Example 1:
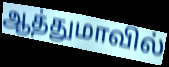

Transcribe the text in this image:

ஆத்துமாவில்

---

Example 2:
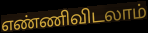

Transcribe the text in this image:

எண்ணிவிடலாம்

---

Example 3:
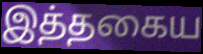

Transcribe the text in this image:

இத்தகைய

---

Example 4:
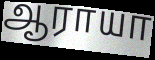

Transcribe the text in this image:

ஆராயா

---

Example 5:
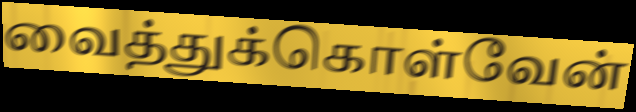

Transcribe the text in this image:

வைத்துக்கொள்வேன்